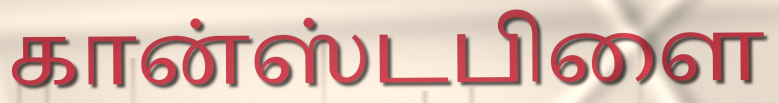
கான்ஸ்டபிளை